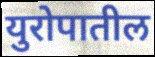
युरोपातील